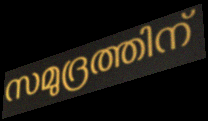
സമുദ്രത്തിന്